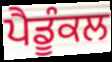
ਪੈਡੂੰਕਲ